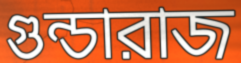
গুন্ডারাজ